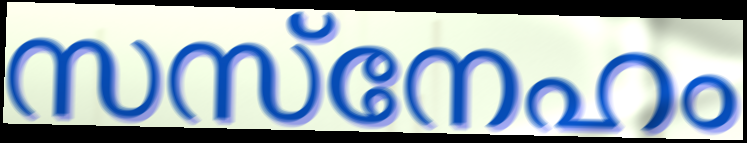
സസ്നേഹം